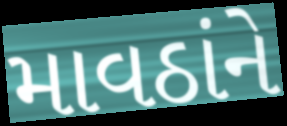
માવઠાંને